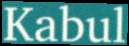
Kabul